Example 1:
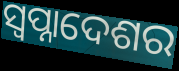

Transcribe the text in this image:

ସ୍ଵପ୍ନାଦେଶର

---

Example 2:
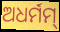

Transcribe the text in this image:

ଅଧର୍ମମ୍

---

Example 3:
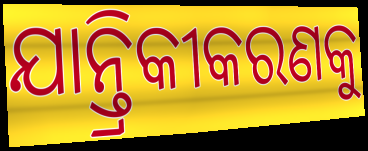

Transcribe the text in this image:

ଯାନ୍ତ୍ରିକୀକରଣକୁ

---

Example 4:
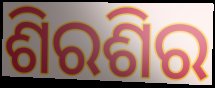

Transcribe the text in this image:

ଶିରଶିର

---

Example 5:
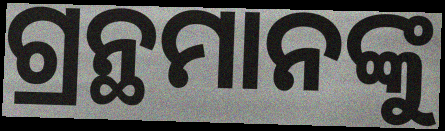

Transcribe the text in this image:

ଗ୍ରନ୍ଥମାନଙ୍କୁ